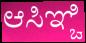
ಆಸಿಞ್ಚಿ